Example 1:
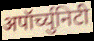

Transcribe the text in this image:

अपॉर्च्युनिटी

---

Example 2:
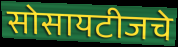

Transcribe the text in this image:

सोसायटीजचे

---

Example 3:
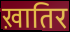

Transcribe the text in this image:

ख़ातिर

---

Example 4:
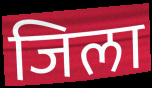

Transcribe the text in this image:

जिला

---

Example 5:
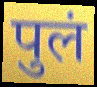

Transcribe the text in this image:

पुलं